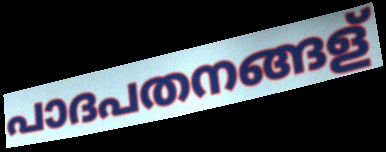
പാദപതനങ്ങള്